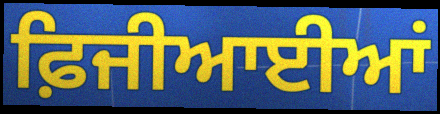
ਫ਼ਿਜੀਆਈਆਂ